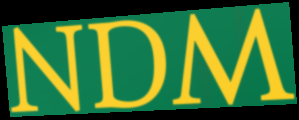
NDM